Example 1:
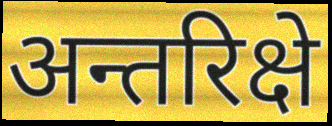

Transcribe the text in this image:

अन्तरिक्षे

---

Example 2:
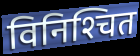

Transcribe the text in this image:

विनिश्चित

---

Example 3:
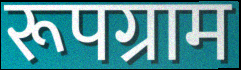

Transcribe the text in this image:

रूपग्राम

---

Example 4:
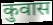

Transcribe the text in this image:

कुवास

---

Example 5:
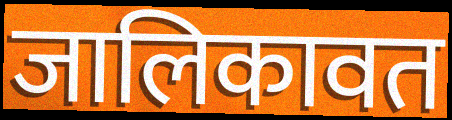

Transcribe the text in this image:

जालिकावत